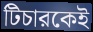
টিচারকেই